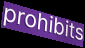
prohibits